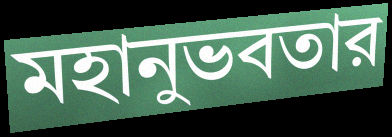
মহানুভবতার